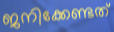
ജനിക്കേണ്ടത്